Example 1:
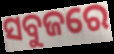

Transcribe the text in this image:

ସବୁଜରେ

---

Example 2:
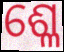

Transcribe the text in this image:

ଶ୍ଳେ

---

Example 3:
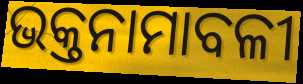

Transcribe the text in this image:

ଭକ୍ତନାମାବଳୀ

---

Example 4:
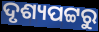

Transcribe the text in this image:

ଦୃଶ୍ୟପଟ୍ଟରୁ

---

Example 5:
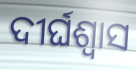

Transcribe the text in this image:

ଦୀର୍ଘଶ୍ବାସ